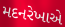
મદનરેખાએ